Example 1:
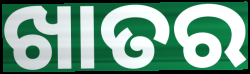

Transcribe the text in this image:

ଖାତର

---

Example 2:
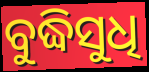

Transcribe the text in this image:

ବୁଦ୍ଧିସୁଧି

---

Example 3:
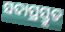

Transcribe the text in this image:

ସଦାପ୍ରସ୍ତୁତ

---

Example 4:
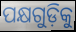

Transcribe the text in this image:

ପକ୍ଷଗୁଡ଼ିକୁ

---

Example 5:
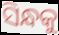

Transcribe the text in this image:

ସିନ୍ଧକୁ